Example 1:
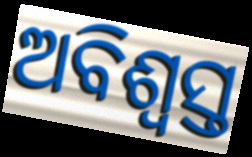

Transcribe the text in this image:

ଅବିଶ୍ୱସ୍ତ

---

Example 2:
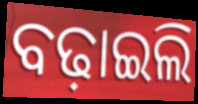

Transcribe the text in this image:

ବଢ଼ାଇଲି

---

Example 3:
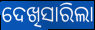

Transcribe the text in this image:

ଦେଖିସାରିଲା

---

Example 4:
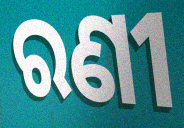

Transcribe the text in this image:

ରଣୀ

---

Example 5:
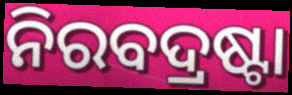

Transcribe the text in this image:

ନିରବଦ୍ରଷ୍ଟା